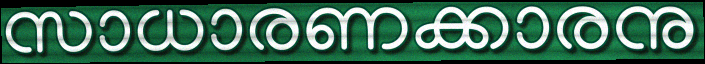
സാധാരണക്കാരനു